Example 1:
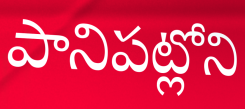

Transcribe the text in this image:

పానిపట్లోని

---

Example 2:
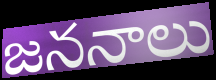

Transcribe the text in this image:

జననాలు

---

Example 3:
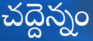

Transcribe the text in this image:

చద్దెన్నం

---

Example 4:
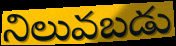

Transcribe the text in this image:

నిలువబడు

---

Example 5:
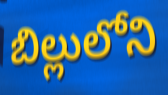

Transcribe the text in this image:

బిల్లులోని